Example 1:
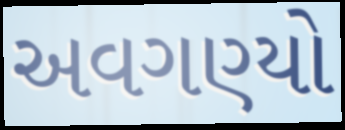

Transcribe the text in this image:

અવગણ્યો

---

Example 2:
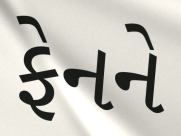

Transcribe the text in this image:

ફેનને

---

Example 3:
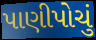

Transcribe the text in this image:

પાણીપોચું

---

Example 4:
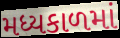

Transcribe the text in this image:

મધ્યકાળમાં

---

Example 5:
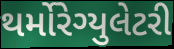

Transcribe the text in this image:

થર્મોરેગ્યુલેટરી